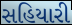
સહિયારી